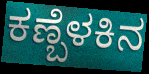
ಕಣ್ಬೆಳಕಿನ